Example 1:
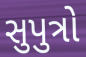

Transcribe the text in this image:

સુપુત્રો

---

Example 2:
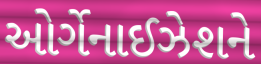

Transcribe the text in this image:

ઓર્ગેનાઈઝેશને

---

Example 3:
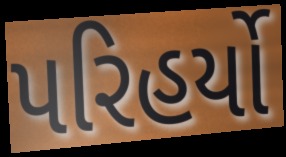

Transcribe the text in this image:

પરિહર્યો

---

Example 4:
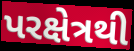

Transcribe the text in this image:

પરક્ષેત્રથી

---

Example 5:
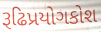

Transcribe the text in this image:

રૂઢિપ્રયોગકોશ